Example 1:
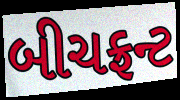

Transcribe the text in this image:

બીચફ્રન્ટ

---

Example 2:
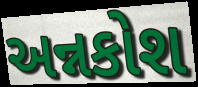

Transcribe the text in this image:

અન્નકોશ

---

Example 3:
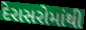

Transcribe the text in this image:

દેરાસરોમાંથી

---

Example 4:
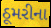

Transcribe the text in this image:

ઠૂમરીના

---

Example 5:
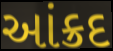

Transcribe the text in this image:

આંક્રદ